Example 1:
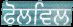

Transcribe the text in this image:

ਫੋਲਵਿਲ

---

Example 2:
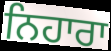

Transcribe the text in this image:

ਨਿਹਾਰਾ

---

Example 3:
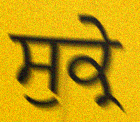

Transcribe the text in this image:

ਸੁਕ੍ਰੇ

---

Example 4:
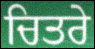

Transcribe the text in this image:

ਚਿਤਰੇ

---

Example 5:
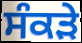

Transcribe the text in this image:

ਸੰਕੜੇ